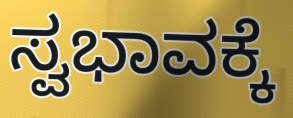
ಸ್ವಭಾವಕ್ಕೆ